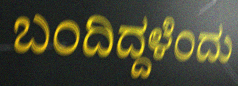
ಬಂದಿದ್ದಳೆಂದು